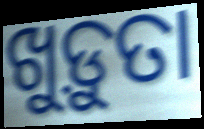
ଖୁଡ଼ୁତା